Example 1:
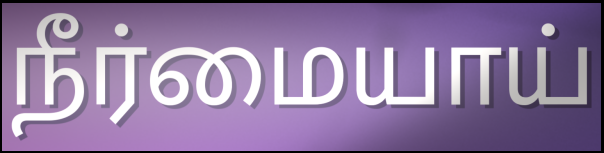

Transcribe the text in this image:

நீர்மையாய்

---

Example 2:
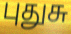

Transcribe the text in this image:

புதுசு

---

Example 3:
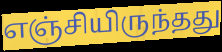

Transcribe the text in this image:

எஞ்சியிருந்தது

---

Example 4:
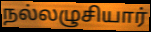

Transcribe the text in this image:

நல்லழுசியார்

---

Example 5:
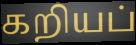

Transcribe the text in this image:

கறியப்